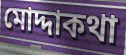
মোদ্দাকথা